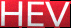
HEV